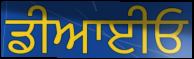
ਡੀਆਈਓ